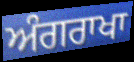
ਅੰਗਰਾਖਾ